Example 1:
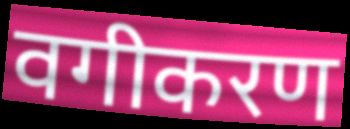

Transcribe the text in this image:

वगीकरण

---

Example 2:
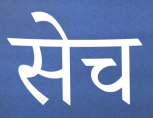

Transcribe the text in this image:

सेच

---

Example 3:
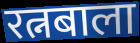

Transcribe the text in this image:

रत्नबाला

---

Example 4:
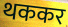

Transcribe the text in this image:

थककर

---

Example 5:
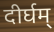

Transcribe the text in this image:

दीर्घम्